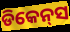
ଡିକେନ୍‌ସ